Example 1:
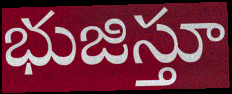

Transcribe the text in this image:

భుజిస్తూ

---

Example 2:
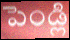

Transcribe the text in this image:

పెండ్లి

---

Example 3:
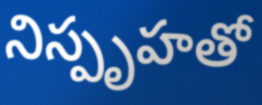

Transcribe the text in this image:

నిస్పృహతో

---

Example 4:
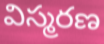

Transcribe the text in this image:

విస్మరణ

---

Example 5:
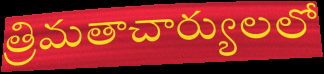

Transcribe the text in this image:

త్రిమతాచార్యులలో